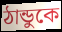
ঠান্ডুকে